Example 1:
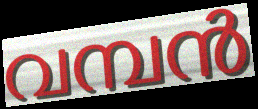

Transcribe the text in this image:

വമ്പൻ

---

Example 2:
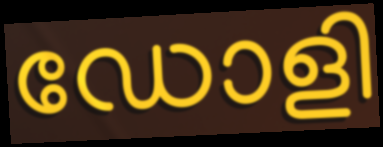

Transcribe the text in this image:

ഡോളി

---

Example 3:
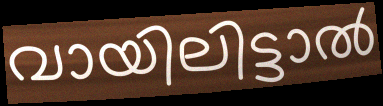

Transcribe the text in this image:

വായിലിട്ടാൽ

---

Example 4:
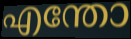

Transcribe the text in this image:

എന്തോ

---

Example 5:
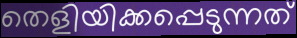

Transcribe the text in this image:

തെളിയിക്കപ്പെടുന്നത്